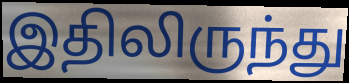
இதிலிருந்து